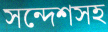
সন্দেশসহ